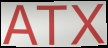
ATX